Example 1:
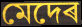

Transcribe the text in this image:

মেদেৰ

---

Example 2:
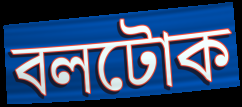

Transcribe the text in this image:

বলটোক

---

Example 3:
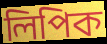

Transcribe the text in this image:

লিপিক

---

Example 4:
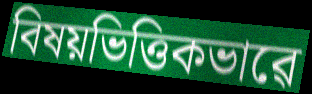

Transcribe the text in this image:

বিষয়ভিত্তিকভাৱে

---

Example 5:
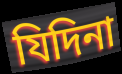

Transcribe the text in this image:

যিদিনা